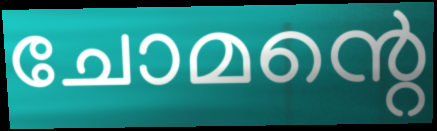
ചോമന്റെ